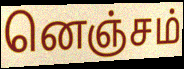
னெஞ்சம்